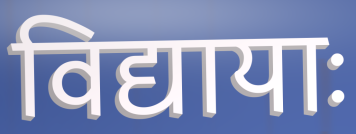
विद्यायाः